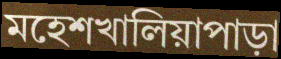
মহেশখালিয়াপাড়া